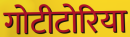
गोटीटोरिया